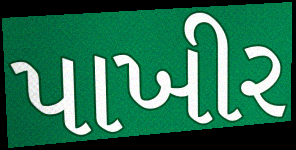
પાખીર